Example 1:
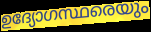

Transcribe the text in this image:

ഉദ്യോഗസ്ഥരെയും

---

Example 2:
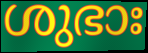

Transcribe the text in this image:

ശുഭാഃ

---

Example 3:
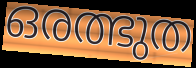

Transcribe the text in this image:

ഒരത്ഭുത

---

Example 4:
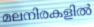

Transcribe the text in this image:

മലനിരകളിൽ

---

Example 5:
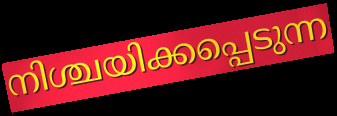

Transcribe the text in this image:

നിശ്ചയിക്കപ്പെടുന്ന